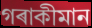
গৰাকীমান